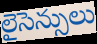
లైసెన్సులు